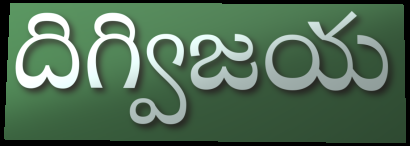
దిగ్విజయ